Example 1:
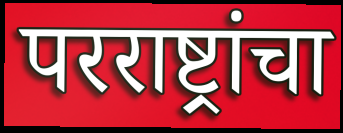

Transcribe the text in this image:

परराष्ट्रांचा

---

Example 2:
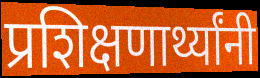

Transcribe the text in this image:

प्रशिक्षणार्थ्यांनी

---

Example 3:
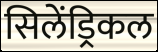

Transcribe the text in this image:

सिलेंड्रिकल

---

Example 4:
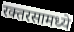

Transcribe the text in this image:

रक्तरसामध्ये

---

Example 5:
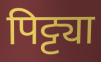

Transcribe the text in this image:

पिट्ट्या